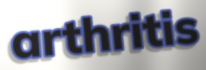
arthritis